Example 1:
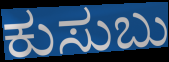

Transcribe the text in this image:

ಕುಸುಬು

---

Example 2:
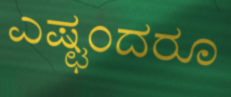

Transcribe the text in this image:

ಎಷ್ಟಂದರೂ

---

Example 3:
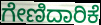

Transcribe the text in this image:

ಗೇಣಿದಾರಿಕೆ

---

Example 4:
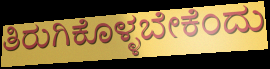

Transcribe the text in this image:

ತಿರುಗಿಕೊಳ್ಳಬೇಕೆಂದು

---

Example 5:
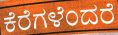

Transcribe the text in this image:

ಕೆರೆಗಳೆಂದರೆ